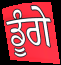
ਡੂੰਗੇ